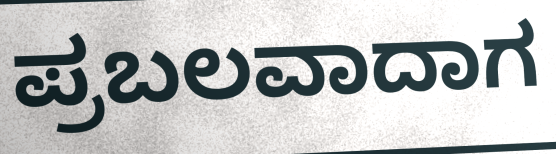
ಪ್ರಬಲವಾದಾಗ